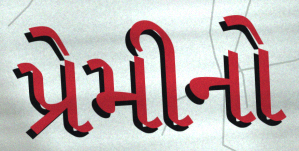
પ્રેમીનો